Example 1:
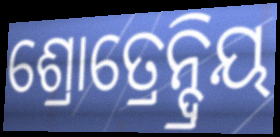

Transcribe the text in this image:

ଶ୍ରୋତ୍ରେନ୍ଦ୍ରିୟ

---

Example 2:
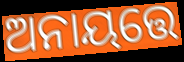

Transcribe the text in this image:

ଅନାୟତ୍ତେ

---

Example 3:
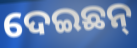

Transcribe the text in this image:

ଦେଇଛନ୍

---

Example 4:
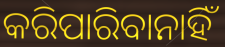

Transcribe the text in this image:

କରିପାରିବାନାହିଁ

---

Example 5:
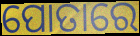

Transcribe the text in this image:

ପୋତାରେ